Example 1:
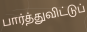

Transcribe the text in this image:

பார்த்துவிட்டுப்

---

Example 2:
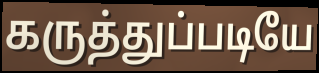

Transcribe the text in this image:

கருத்துப்படியே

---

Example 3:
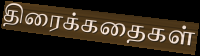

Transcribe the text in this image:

திரைக்கதைகள்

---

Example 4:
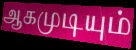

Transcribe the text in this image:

ஆகமுடியும்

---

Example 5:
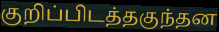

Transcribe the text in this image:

குறிப்பிடத்தகுந்தன